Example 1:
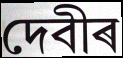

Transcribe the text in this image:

দেবীৰ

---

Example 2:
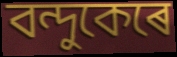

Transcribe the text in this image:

বন্দুকেৰে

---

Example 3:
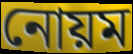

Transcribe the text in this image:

নোয়ম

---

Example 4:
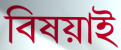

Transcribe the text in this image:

বিষয়াই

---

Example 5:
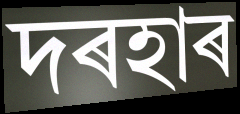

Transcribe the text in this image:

দৰহাৰ